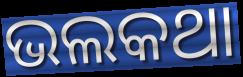
ଭଲକଥା